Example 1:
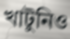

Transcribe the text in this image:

খাটুনিও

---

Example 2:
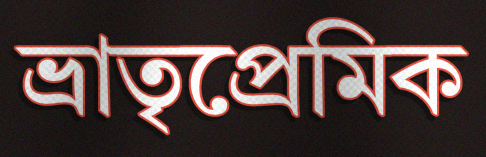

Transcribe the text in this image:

ভ্রাতৃপ্রেমিক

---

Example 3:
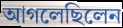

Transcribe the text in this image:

আগলেছিলেন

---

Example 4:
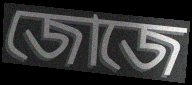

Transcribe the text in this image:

জোজে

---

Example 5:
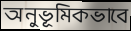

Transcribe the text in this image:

অনুভূমিকভাবে